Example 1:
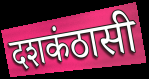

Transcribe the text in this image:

दशकंठासी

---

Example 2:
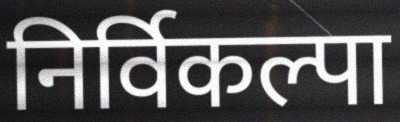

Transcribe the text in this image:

निर्विकल्पा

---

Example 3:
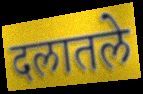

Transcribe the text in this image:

दलातले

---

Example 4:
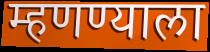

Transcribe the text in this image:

म्हणण्याला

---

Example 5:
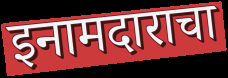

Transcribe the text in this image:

इनामदाराचा